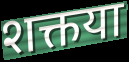
शक्तया